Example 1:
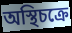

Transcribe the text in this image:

অস্থিচক্রে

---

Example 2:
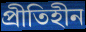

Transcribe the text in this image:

প্রীতিহীন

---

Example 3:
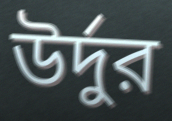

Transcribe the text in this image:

উর্দুর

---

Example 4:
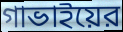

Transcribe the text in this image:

গাভাইয়ের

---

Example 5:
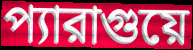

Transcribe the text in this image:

প্যারাগুয়ে